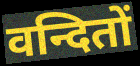
वन्दितों